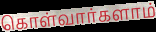
கொள்வார்களாம்